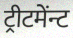
ट्रीटमेंन्ट